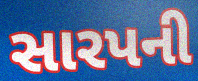
સારપની